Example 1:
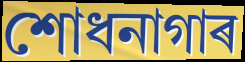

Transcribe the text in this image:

শোধনাগাৰ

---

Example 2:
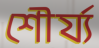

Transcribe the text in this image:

শৌৰ্য্য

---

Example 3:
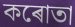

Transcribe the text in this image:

কৰোতা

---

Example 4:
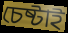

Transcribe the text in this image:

চেষ্টাই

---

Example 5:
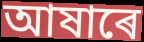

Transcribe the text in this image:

আষাৰে